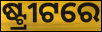
ଷ୍ଟ୍ରୀଟରେ